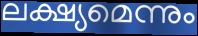
ലക്ഷ്യമെന്നും